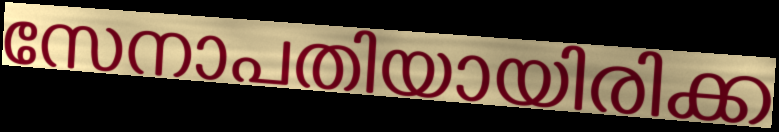
സേനാപതിയായിരിക്ക